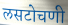
लसटोचणी